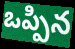
ఒప్పిన